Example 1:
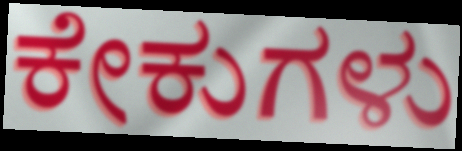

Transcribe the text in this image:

ಕೇಕುಗಳು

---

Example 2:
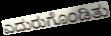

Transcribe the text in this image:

ಎದುರುಗೊಂಡಿತು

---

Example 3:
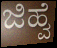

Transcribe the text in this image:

ಜಿಹ್ವೆ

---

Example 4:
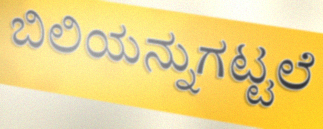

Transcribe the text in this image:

ಬಿಲಿಯನ್ನುಗಟ್ಟಲೆ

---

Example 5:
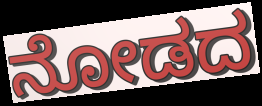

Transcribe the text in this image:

ನೋಡದ